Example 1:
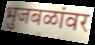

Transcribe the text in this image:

भुजबळांवर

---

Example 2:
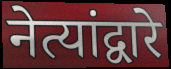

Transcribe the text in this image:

नेत्यांद्वारे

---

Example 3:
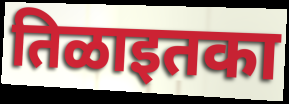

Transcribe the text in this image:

तिळाइतका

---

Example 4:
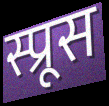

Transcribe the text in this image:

स्प्रूस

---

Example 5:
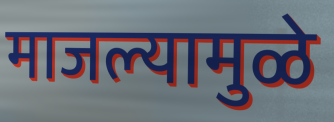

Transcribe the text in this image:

माजल्यामुळे